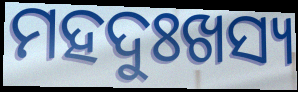
ମହଦୁଃଖସ୍ୟ